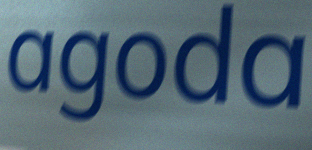
agoda